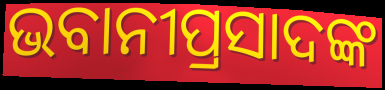
ଭବାନୀପ୍ରସାଦଙ୍କ